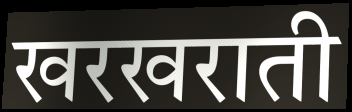
खरखराती